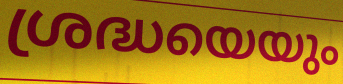
ശ്രദ്ധയെയും